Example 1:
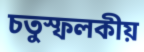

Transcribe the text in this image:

চতুস্ফলকীয়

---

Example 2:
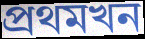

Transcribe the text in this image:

প্ৰথমখন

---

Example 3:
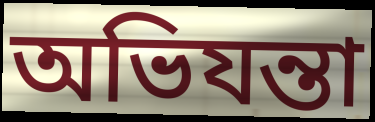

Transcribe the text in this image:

অভিযন্তা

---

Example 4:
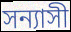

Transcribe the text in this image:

সন্যাসী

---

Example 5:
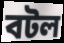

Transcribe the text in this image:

বটল